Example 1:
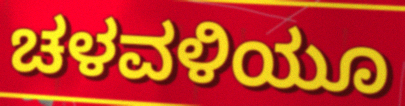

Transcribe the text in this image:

ಚಳವಳಿಯೂ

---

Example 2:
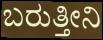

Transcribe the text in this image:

ಬರುತ್ತೀನಿ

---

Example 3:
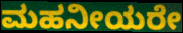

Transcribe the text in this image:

ಮಹನೀಯರೇ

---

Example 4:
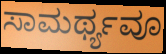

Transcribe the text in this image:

ಸಾಮರ್ಥ್ಯವೂ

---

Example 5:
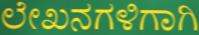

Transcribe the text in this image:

ಲೇಖನಗಳಿಗಾಗಿ